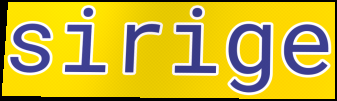
sirige